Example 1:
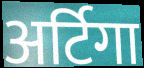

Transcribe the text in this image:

अर्टिगा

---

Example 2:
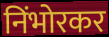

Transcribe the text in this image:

निंभोरकर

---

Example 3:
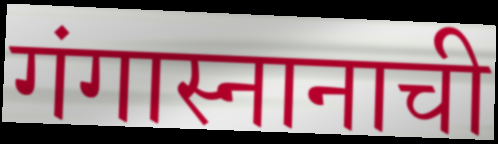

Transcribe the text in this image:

गंगास्नानाची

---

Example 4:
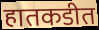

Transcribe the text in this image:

हातकडीत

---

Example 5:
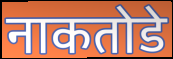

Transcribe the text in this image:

नाकतोडे